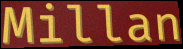
Millan